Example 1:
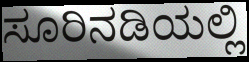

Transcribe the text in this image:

ಸೂರಿನಡಿಯಲ್ಲಿ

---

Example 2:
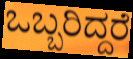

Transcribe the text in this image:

ಒಬ್ಬರಿದ್ದರೆ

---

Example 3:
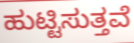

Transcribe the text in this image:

ಹುಟ್ಟಿಸುತ್ತವೆ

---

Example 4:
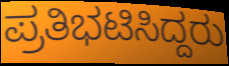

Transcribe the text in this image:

ಪ್ರತಿಭಟಿಸಿದ್ದರು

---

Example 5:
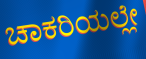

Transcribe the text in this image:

ಚಾಕರಿಯಲ್ಲೇ